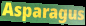
Asparagus